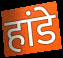
हांडे